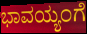
ಭಾವಯ್ಯಂಗೆ